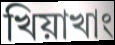
খিয়াখাং